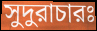
সুদুরাচারঃ